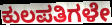
ಕುಲಪತಿಗಳೇ